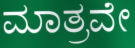
ಮಾತ್ರವೇ